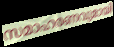
സമാഹരണവുമായി